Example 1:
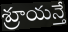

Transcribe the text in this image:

శ్రూయన్తే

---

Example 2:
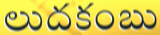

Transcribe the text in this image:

లుదకంబు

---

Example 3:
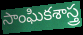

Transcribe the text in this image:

సాంఘికశాస్త్ర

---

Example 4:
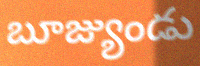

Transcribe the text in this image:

బూజ్యుండు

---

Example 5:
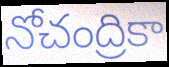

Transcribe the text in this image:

నోచంద్రికా